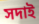
সদাই